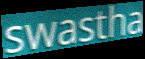
swastha